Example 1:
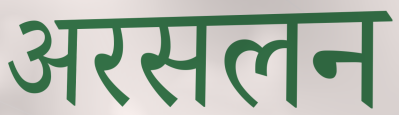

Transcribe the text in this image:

अरसलन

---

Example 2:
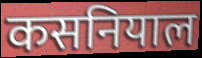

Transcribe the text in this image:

कसनियाल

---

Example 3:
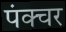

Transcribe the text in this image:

पंक्‍चर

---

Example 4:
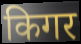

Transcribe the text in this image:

किगर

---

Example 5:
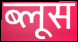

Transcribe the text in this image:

ब्लूस